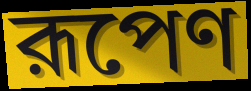
রূপেণ